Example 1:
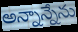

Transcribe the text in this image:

అన్నాన్నేను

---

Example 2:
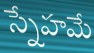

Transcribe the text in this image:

స్నేహమే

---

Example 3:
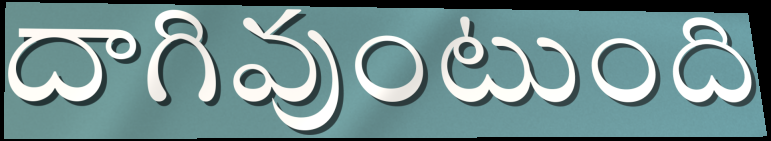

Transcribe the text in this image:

దాగివుంటుంది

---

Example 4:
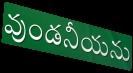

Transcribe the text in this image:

వుండనీయను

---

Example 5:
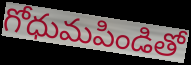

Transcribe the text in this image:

గోధుమపిండితో